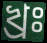
খ্রঃ